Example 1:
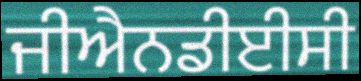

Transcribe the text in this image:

ਜੀਐਨਡੀਈਸੀ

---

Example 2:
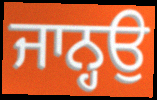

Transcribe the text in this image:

ਜਾਨ੍ਹਉ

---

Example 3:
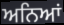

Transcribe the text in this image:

ਅਨਿਆਂ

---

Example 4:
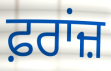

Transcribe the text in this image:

ਫ਼ਰਾਂਜ਼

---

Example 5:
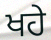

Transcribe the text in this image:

ਖਹੇ